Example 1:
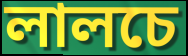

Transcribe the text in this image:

লালচে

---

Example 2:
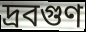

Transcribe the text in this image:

দ্রবগুণ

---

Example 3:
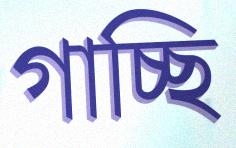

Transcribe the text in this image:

গাচ্ছি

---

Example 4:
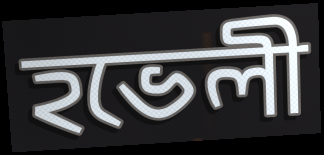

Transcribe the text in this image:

হভেলী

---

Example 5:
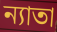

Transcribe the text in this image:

ন্যাতা